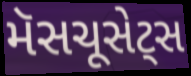
મૅસચૂસેટ્સ